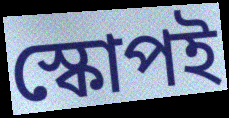
স্কোপই